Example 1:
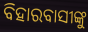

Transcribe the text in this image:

ବିହାରବାସୀଙ୍କୁ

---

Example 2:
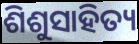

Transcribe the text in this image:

ଶିଶୁସାହିତ୍ୟ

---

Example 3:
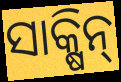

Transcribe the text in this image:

ସାକ୍ଷିନ୍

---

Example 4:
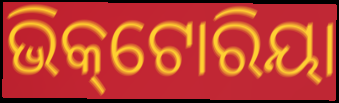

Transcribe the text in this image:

ଭିକ୍‌ଟୋରିୟା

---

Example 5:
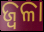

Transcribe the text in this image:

ଜ୍ୱଳା